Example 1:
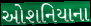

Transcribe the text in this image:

ઓશનિયાના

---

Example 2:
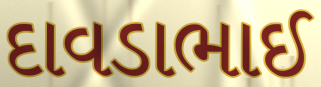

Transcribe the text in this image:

દાવડાભાઈ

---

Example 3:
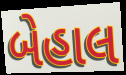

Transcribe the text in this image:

બેહાલ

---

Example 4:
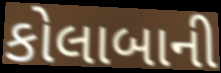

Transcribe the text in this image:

કોલાબાની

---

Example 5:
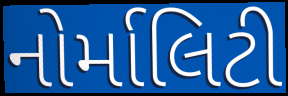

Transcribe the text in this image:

નોર્માલિટી